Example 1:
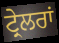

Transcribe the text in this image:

ਟ੍ਰੇਲਰਾਂ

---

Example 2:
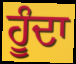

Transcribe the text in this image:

ਹੂੰਦਾ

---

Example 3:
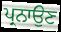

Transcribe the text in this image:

ਪ੍ਰਨਾਉਣ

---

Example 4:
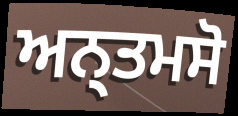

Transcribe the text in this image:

ਅਨ੍ਤਮਸੋ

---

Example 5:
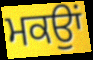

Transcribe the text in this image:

ਮਕਉਾਂ